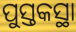
ପୁସ୍ତକସ୍ଥା